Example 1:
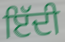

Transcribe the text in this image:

ਇੱਦੀ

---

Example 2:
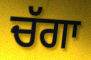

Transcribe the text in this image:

ਚੱਗਾ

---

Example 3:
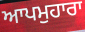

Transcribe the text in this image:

ਆਪਮੁਹਾਰਾ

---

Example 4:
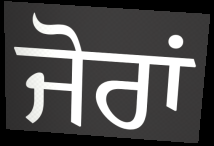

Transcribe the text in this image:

ਜੋਰਾਂ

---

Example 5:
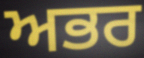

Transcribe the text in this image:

ਅਭਰ